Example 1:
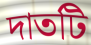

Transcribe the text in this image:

দাতটি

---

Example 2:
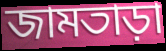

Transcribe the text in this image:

জামতাড়া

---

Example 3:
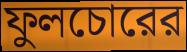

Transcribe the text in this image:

ফুলচোরের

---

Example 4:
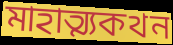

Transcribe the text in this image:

মাহাত্ম্যকথন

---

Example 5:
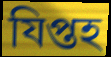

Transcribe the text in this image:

যিপ্তহ